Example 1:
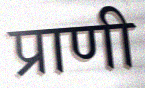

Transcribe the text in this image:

प्राणी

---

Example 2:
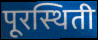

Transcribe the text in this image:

पूरस्थिती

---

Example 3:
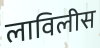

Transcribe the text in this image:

लाविलीस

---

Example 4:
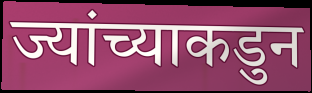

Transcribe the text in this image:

ज्यांच्याकडुन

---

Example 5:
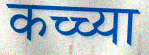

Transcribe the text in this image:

कच्च्या